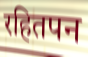
रहितपन